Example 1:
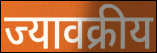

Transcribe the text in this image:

ज्यावक्रीय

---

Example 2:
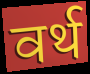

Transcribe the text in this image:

वर्थ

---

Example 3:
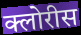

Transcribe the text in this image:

क्लोरीस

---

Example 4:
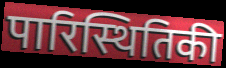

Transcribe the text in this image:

पारिस्थितिकी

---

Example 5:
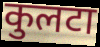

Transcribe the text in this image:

कुलटा